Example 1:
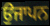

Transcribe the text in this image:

ਉਜਾਪਨ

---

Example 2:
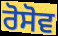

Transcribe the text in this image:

ਰੋਸੋਵ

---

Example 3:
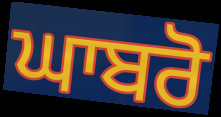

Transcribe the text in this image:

ਘਾਬਰੋ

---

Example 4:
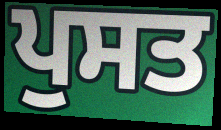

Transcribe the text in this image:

ਪੁਸਤ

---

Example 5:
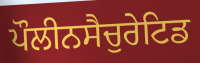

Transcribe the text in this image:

ਪੌਲੀਨਸੈਚੁਰੇਟਿਡ